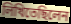
লিখিতেছিলেন